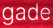
gade